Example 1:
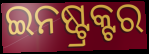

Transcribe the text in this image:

ଇନଷ୍ଟ୍ରକ୍ଟର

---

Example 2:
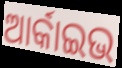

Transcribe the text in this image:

ଆର୍କାଇଭ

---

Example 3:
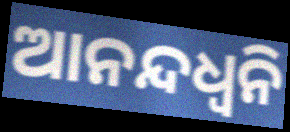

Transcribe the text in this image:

ଆନନ୍ଦଧ୍ଵନି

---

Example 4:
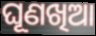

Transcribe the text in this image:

ଘୂଣଖିଆ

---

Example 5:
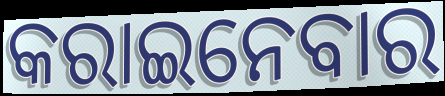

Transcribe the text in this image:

କରାଇନେବାର